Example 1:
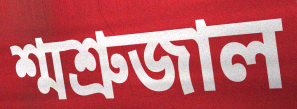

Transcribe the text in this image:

শ্মশ্রুজাল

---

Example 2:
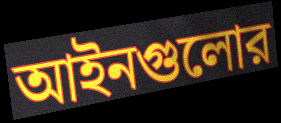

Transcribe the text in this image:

আইনগুলোর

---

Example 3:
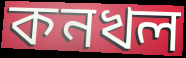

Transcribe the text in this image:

কনখল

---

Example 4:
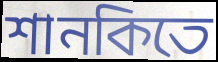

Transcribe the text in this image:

শানকিতে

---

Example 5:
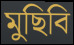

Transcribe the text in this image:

মুছিবি